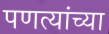
पणत्यांच्या